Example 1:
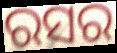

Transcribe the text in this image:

ରସର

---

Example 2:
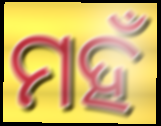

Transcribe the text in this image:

ମହଁ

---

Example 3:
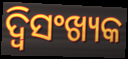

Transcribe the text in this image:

ଦ୍ୱିସଂଖ୍ୟକ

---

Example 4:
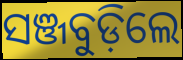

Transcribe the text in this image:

ସଞ୍ଜବୁଡ଼ିଲେ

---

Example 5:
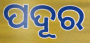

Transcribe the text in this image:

ପଦୂର